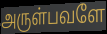
அருள்பவளே